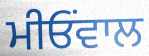
ਮੀਓਂਵਾਲ